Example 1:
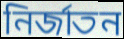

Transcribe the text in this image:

নিৰ্জাতন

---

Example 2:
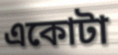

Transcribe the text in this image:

একোটা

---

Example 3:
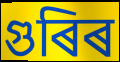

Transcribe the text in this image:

গুৰিৰ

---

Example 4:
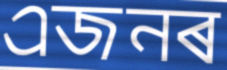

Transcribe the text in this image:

এজনৰ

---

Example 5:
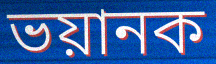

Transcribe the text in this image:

ভয়ানক